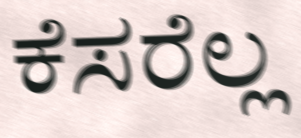
ಕೆಸರೆಲ್ಲ